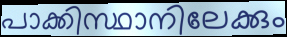
പാക്കിസ്ഥാനിലേക്കും